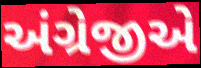
અંગ્રેજીએ